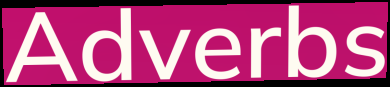
Adverbs